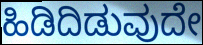
ಹಿಡಿದಿಡುವುದೇ